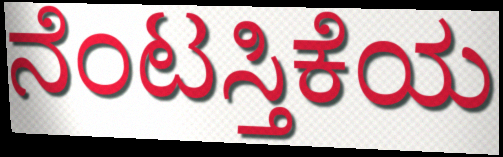
ನೆಂಟಸ್ತಿಕೆಯ